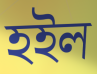
হইল